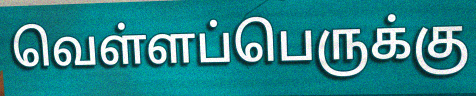
வெள்ளப்பெருக்கு